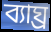
ব্যাঘ্র